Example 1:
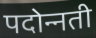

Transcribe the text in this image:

पदोन्‍नती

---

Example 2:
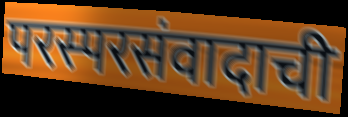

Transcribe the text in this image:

परस्परसंवादाची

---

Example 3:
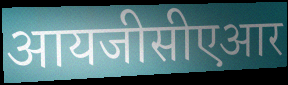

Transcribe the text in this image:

आयजीसीएआर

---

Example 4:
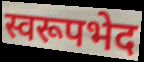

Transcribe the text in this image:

स्वरूपभेद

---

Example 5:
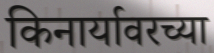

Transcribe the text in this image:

किनार्यावरच्या